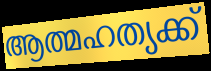
ആത്മഹത്യക്ക്